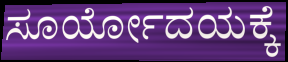
ಸೂರ್ಯೋದಯಕ್ಕೆ